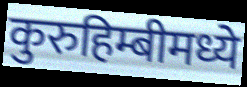
कुरुहिम्बीमध्ये